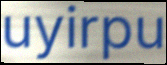
uyirpu